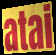
atai